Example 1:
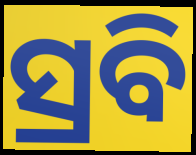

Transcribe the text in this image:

ସ୍ରବି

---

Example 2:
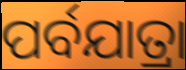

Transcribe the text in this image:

ପର୍ବଯାତ୍ରା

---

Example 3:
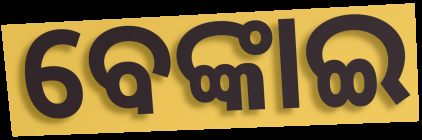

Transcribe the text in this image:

ବେଙ୍କାଇ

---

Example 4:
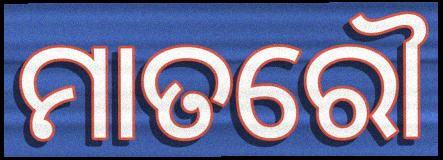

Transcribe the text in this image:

ମାତରୌ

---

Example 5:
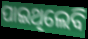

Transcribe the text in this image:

ପାଇଥିଲେବି